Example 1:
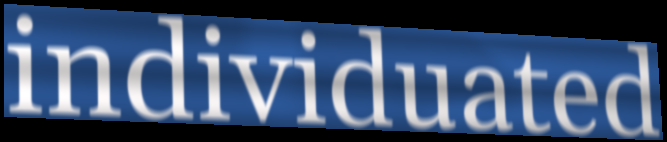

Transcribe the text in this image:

individuated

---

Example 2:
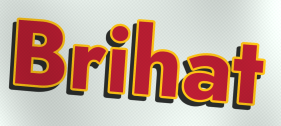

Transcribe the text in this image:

Brihat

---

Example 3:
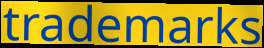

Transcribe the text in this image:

trademarks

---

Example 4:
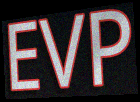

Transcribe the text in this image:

EVP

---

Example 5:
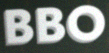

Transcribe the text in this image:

BBO